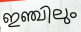
ഇഞ്ചിലും